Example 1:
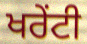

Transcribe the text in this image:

ਖਰੇਂਟੀ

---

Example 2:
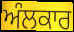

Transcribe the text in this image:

ਅੰਲਕਾਰ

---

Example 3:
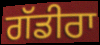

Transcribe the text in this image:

ਗੱਡੀਰਾ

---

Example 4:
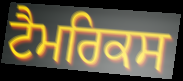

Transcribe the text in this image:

ਟੈਮਰਿਕਸ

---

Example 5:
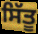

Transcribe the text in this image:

ਸਿੱਤੂ